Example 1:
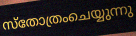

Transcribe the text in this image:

സ്തോത്രംചെയ്യുന്നു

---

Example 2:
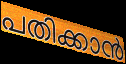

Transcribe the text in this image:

പതിക്കാൻ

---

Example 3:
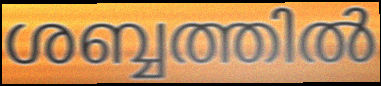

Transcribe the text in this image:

ശബ്ബത്തിൽ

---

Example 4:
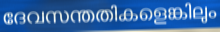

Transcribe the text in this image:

ദേവസന്തതികളെങ്കിലും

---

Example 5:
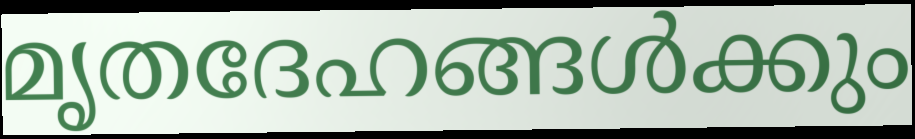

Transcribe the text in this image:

മൃതദേഹങ്ങൾക്കും